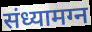
संध्यामग्न